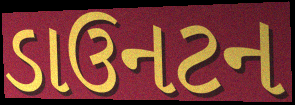
ડાઉનટન